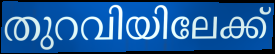
തുറവിയിലേക്ക്